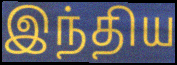
இந்திய